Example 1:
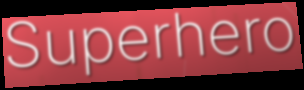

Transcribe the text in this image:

Superhero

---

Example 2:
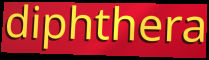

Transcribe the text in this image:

diphthera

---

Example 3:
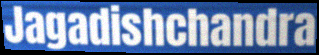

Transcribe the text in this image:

Jagadishchandra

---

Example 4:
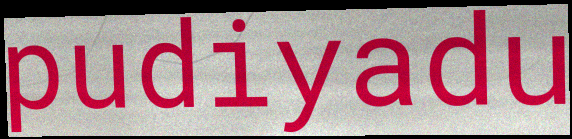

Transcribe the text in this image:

pudiyadu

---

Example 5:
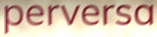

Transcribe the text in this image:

perversa